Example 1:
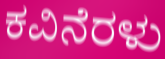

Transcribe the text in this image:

ಕವಿನೆರಳು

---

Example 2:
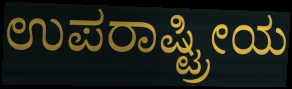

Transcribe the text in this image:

ಉಪರಾಷ್ಟ್ರೀಯ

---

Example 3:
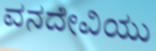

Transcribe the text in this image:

ವನದೇವಿಯು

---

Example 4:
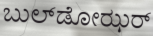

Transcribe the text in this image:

ಬುಲ್‌ಡೋಝರ್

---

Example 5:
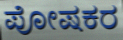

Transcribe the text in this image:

ಪೋಷಕರ